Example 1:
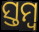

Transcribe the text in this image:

ସ୍ତମ୍ବ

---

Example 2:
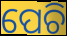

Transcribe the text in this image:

ପେଚି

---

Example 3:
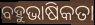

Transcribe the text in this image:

ବହୁଭାଷିକତା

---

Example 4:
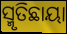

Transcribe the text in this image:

ସ୍ମୃତିଛାୟା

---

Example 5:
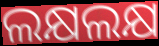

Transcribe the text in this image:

ଲକ୍ଷଲକ୍ଷ